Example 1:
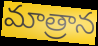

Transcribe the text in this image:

మాత్రాన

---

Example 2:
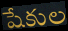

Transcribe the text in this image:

షేకుల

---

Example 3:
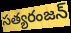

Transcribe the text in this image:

సత్యరంజన్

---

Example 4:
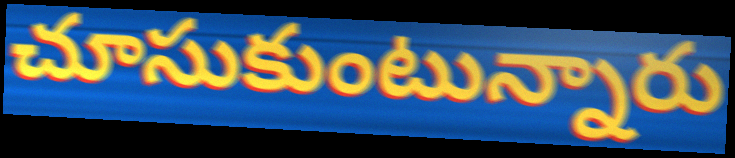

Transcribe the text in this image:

చూసుకుంటున్నారు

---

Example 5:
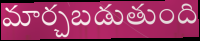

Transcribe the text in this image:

మార్చబడుతుంది